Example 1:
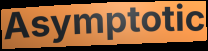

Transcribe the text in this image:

Asymptotic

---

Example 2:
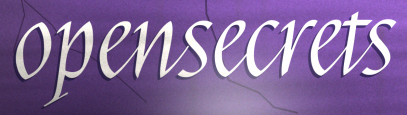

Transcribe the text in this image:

opensecrets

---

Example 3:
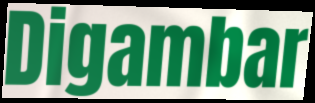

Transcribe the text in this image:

Digambar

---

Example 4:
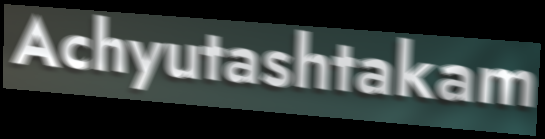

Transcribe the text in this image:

Achyutashtakam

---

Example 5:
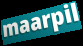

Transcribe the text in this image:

maarpil